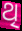
ଥି